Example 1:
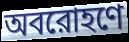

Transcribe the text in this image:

অবরোহণে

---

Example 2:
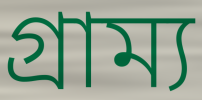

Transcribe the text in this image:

গ্রাম্য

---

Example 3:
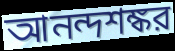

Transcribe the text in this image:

আনন্দশঙ্কর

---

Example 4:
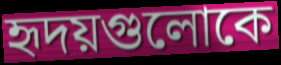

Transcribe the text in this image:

হৃদয়গুলোকে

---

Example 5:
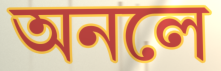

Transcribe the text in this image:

অনলে